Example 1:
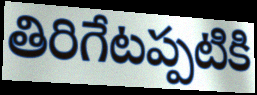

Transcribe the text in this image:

తిరిగేటప్పటికి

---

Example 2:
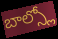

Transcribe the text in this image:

బాల్స్లో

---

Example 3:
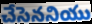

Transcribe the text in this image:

చేసెననియు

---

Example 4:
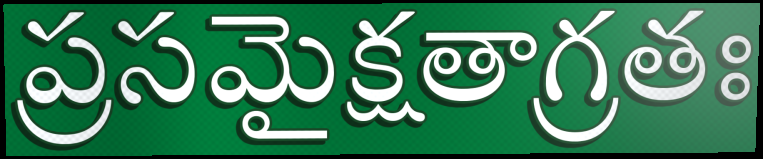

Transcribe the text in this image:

ప్రసమైక్షతాగ్రతః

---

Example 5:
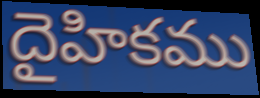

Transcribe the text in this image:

దైహికము